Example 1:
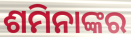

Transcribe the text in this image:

ଶମିନାଙ୍କର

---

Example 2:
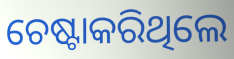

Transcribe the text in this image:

ଚେଷ୍ଟାକରିଥିଲେ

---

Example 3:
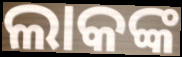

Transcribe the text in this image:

ଲାକଙ୍କ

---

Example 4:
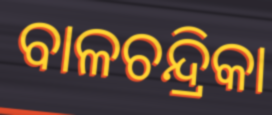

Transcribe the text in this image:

ବାଳଚନ୍ଦ୍ରିକା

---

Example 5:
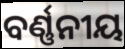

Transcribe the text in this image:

ବର୍ଣ୍ଣନୀୟ